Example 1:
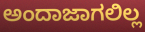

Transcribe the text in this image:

ಅಂದಾಜಾಗಲಿಲ್ಲ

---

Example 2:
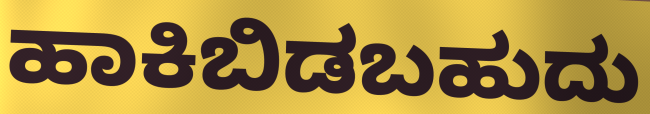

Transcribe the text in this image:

ಹಾಕಿಬಿಡಬಹುದು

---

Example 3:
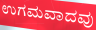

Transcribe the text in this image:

ಉಗಮವಾದವು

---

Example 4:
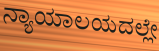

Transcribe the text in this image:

ನ್ಯಾಯಾಲಯದಲ್ಲೇ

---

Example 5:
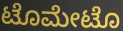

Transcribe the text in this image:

ಟೊಮೇಟೊ